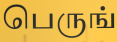
பெருங்